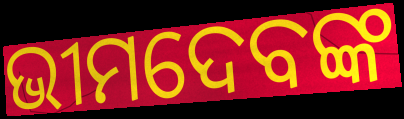
ଭୀମଦେବଙ୍କ